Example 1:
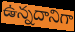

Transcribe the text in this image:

ఉన్నదానిగా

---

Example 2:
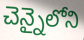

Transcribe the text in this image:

చెన్నైలోని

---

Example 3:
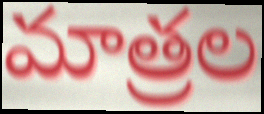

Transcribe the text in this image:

మాత్రల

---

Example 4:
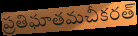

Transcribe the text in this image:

ప్రతిఘాతమచీకరత్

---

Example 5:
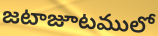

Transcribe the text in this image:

జటాజూటములో